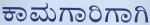
ಕಾಮಗಾರಿಗಾಗಿ